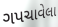
ગપચાવેલા